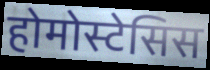
होमोस्टेसिस